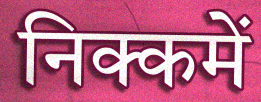
निक्कमें